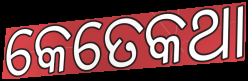
କେତେକଥା